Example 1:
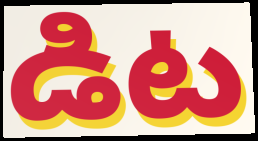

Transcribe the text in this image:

డిట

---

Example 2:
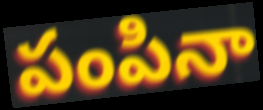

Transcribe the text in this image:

పంపినా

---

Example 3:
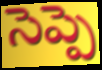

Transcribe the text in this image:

సెప్పె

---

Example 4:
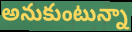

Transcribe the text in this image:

అనుకుంటున్నా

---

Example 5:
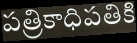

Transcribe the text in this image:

పత్రికాధిపతికి